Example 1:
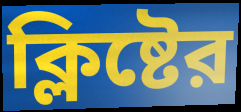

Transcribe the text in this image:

ক্লিষ্টের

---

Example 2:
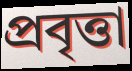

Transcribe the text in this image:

প্রবৃত্তা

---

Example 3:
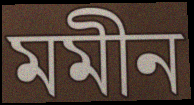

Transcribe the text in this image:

মমীন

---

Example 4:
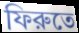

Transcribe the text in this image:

ফিরুতে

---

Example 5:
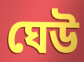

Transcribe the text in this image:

ঘেউ